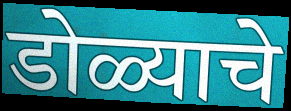
डोळ्याचे